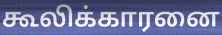
கூலிக்காரனை